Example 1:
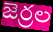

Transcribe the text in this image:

జెర్రల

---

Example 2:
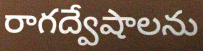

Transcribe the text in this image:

రాగద్వేషాలను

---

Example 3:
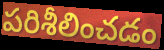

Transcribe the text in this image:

పరిశీలించడం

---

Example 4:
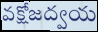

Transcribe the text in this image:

వక్షోజద్వయ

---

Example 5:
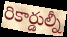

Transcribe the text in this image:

రికార్డుల్నీ